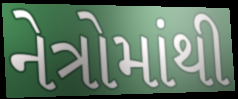
નેત્રોમાંથી